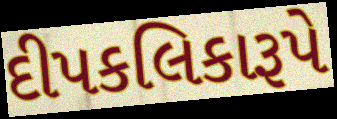
દીપકલિકારૂપે